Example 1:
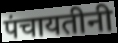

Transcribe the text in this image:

पंचायतीनी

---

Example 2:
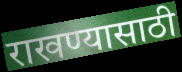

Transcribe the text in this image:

राखण्यासाठी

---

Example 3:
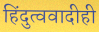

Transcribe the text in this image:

हिंदुत्ववादीही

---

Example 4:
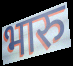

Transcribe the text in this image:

भारु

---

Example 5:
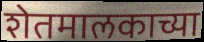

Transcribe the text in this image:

शेतमालकाच्या